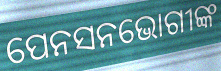
ପେନସନଭୋଗୀଙ୍କ